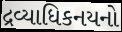
દ્રવ્યાધિકનયનો